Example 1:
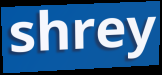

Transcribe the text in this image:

shrey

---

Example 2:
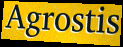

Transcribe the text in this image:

Agrostis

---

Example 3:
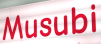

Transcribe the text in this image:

Musubi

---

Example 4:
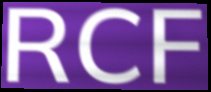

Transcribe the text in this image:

RCF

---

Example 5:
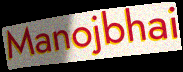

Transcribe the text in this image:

Manojbhai